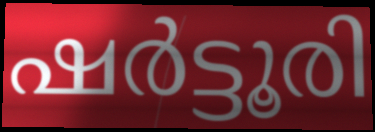
ഷർട്ടൂരി